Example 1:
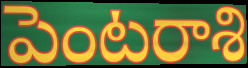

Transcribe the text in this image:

పెంటరాశి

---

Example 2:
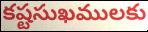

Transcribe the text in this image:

కష్టసుఖములకు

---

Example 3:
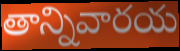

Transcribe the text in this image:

తాన్నివారయ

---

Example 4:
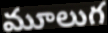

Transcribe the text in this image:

మూలుగ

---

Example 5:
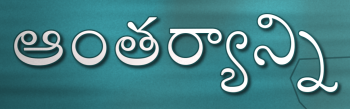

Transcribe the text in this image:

ఆంతర్యాన్ని